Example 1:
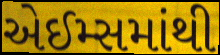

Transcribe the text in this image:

એઈમ્સમાંથી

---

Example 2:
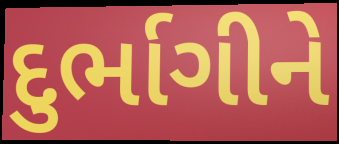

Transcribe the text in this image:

દુર્ભાગીને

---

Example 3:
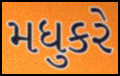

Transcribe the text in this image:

મધુકરે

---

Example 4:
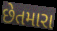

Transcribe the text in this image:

છેતમારા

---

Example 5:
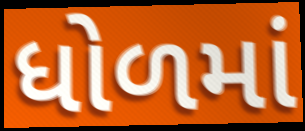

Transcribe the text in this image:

ધોળમાં